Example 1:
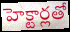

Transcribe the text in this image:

హెక్టార్లతో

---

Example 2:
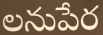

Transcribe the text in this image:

లనుపేర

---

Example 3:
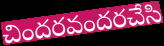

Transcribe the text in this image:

చిందరవందరచేసి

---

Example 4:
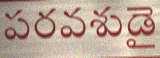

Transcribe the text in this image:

పరవశుడై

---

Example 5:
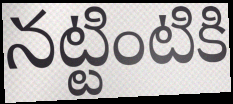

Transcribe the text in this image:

నట్టింటికి